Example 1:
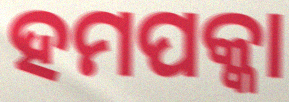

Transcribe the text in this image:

ହମପକ୍କା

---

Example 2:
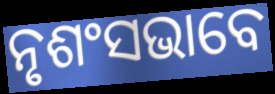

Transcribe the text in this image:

ନୃଶଂସଭାବେ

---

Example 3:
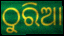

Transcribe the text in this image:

ଠୁରିଆ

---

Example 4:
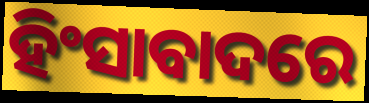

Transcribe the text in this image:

ହିଂସାବାଦରେ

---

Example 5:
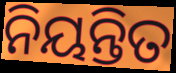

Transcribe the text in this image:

ନିୟନ୍ତିତ